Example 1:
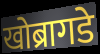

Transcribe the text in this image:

खोब्रागडे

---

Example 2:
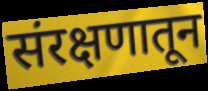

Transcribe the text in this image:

संरक्षणातून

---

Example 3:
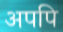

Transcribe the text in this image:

अपपि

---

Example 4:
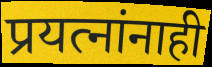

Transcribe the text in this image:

प्रयत्नांनाही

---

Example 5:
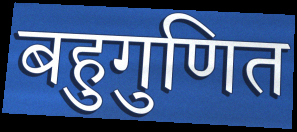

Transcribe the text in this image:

बहुगुणित